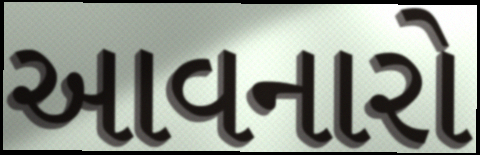
આવનારો